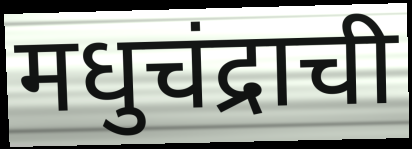
मधुचंद्राची